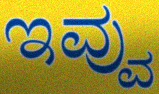
ಇವ್ವು